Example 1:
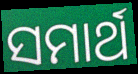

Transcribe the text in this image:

ସମାର୍ଥ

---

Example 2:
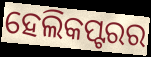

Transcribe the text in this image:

ହେଲିକପ୍ଟରର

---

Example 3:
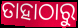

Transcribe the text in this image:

ତାହାଠାରୁ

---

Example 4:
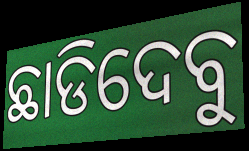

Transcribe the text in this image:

ଛାଡିଦେବୁ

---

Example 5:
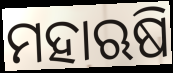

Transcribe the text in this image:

ମହାଋଷି